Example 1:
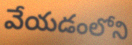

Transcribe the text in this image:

వేయడంలోని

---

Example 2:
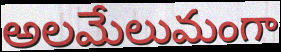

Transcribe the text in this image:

అలమేలుమంగా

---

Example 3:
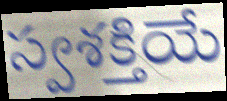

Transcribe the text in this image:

స్వశక్తియే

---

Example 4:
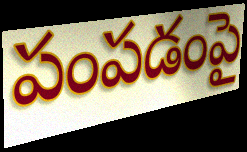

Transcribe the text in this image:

పంపడంపై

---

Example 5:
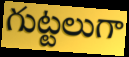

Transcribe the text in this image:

గుట్టలుగా